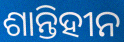
ଶାନ୍ତିହୀନ